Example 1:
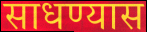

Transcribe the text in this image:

साधण्यास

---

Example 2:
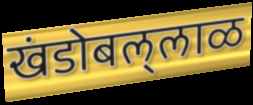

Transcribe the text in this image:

खंडोबल्लाळ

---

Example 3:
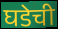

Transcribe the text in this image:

घडेची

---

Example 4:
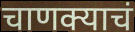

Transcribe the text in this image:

चाणक्याचं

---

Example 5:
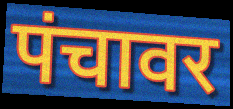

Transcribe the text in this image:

पंचावर